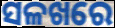
ସଳଖରେ